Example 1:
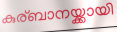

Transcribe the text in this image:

കുര്ബാനയ്ക്കായി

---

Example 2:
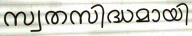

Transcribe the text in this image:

സ്വതസിദ്ധമായി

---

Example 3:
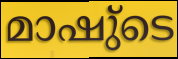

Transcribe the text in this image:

മാഷു്ടെ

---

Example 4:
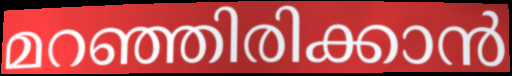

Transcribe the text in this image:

മറഞ്ഞിരിക്കാൻ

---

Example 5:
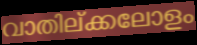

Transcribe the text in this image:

വാതില്ക്കലോളം